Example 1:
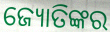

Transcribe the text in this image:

ଜ୍ୟୋତିଙ୍କର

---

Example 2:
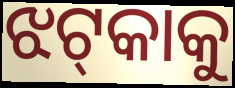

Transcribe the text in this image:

ଝଟ୍‌କାକୁ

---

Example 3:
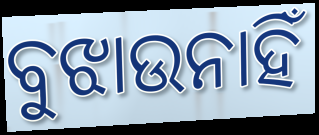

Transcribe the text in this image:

ବୁଝାଉନାହିଁ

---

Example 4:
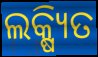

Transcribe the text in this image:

ଲକ୍ଷ୍ୟିତ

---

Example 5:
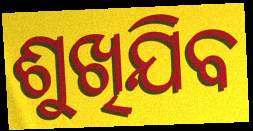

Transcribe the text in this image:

ଶୁଖିଯିବ